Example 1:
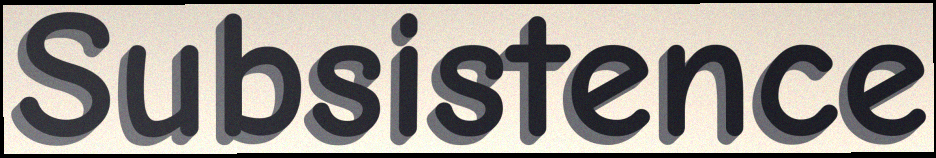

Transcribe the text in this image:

Subsistence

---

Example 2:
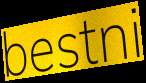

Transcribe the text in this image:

bestni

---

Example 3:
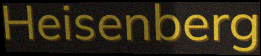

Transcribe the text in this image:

Heisenberg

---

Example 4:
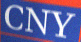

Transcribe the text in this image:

CNY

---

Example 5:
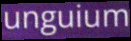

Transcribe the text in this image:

unguium